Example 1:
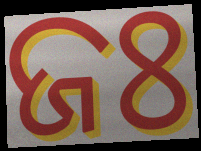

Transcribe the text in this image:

ଜଃ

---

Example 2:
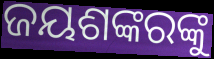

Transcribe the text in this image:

ଜୟଶଙ୍କରଙ୍କୁ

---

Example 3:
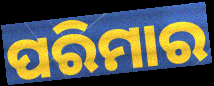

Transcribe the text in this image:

ପରିମାର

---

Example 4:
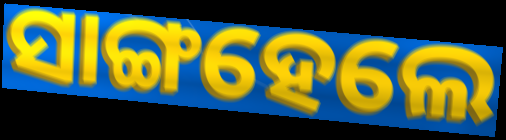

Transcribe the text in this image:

ସାଙ୍ଗହେଲେ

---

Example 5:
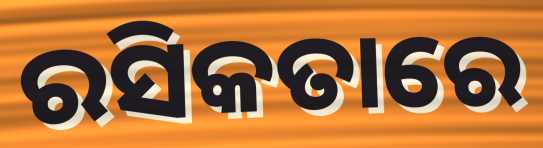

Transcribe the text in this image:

ରସିକତାରେ